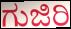
ಗುಜಿರಿ